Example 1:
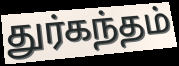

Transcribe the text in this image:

துர்கந்தம்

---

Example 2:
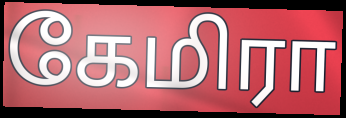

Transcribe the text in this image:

கேமிரா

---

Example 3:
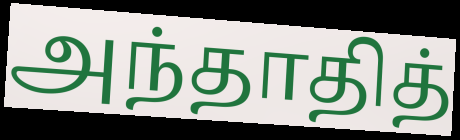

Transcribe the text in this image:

அந்தாதித்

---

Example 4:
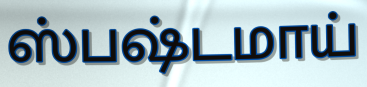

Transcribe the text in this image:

ஸ்பஷ்டமாய்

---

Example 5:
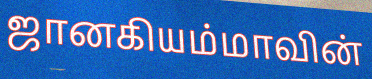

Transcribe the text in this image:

ஜானகியம்மாவின்